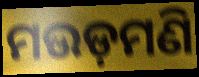
ମଉଡ଼ମଣି